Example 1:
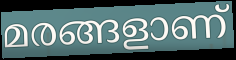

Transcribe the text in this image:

മരങ്ങളാണ്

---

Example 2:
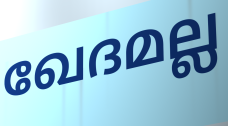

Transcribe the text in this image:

ഖേദമല്ല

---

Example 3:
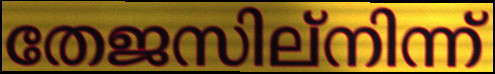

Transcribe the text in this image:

തേജസില്നിന്ന്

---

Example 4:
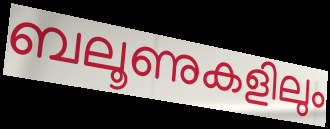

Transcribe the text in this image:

ബലൂണുകളിലും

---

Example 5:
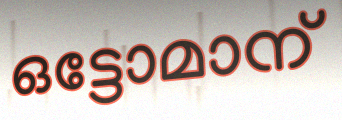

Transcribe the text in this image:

ഒട്ടോമാന്